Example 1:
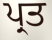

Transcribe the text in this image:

ਪ੍ਰਤ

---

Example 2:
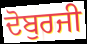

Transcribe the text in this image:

ਦੋਬੁਰਜੀ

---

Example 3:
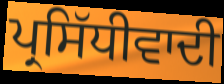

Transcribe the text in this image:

ਪ੍ਰਸਿੱਧੀਵਾਦੀ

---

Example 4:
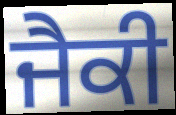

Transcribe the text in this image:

ਜੈਕੀ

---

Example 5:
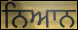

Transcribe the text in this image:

ਨਿਆਨ